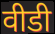
वीडी